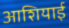
आशियाई